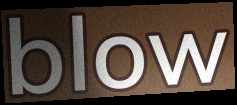
blow